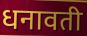
धनावती